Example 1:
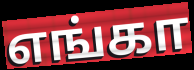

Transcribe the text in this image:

எங்கா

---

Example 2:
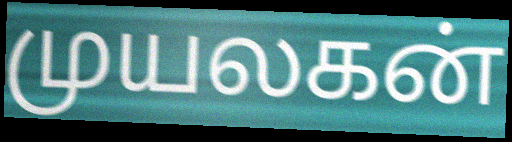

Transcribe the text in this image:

முயலகன்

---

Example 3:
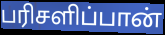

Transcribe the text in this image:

பரிசளிப்பான்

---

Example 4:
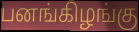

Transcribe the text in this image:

பனங்கிழங்கு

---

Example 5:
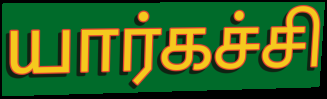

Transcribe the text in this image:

யார்கச்சி